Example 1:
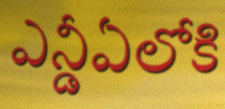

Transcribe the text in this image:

ఎన్డీఏలోకి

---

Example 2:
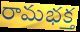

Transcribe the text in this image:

రామభక్త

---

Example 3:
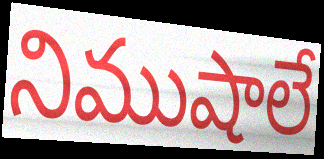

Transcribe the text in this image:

నిముషాలే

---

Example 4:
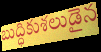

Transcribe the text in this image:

బుద్ధికుశలుడైన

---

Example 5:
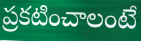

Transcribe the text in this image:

ప్రకటించాలంటే